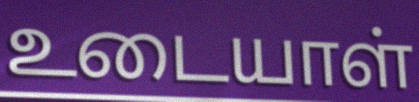
உடையாள்